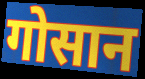
गोसान